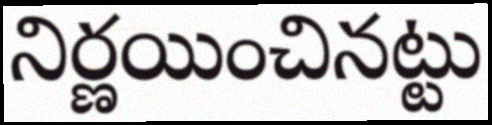
నిర్ణయించినట్టు